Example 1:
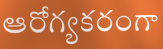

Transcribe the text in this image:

ఆరోగ్యకరంగా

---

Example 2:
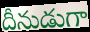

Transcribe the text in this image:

దీనుడుగా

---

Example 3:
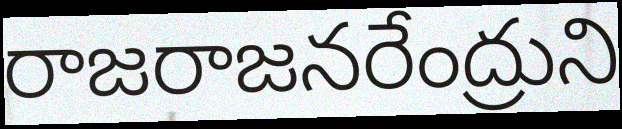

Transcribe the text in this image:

రాజరాజనరేంద్రుని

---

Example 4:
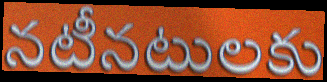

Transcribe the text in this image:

నటీనటులకు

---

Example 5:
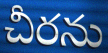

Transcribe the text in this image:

చీరను